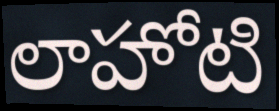
లాహోటి